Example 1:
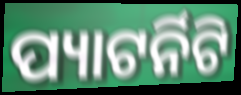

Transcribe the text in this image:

ପ୍ୟାଟର୍ନିଟି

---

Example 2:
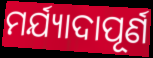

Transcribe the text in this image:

ମର୍ଯ୍ୟାଦାପୂର୍ଣ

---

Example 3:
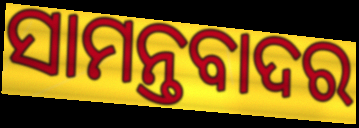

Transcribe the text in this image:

ସାମନ୍ତବାଦର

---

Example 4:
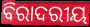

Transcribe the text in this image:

ବିରାଦରୀୟ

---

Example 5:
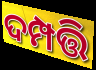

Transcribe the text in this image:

ଦମ୍ପତ୍ତି